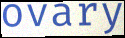
ovary